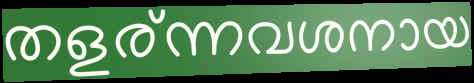
തളര്ന്നവശനായ